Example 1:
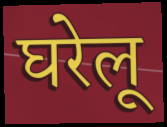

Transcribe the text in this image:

घरेलू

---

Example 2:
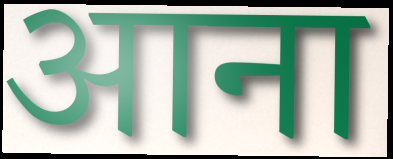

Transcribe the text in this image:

आना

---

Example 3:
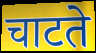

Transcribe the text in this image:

चाटते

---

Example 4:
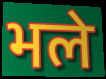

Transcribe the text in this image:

भले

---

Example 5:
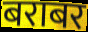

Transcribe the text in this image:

बराबर